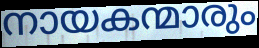
നായകന്മാരും